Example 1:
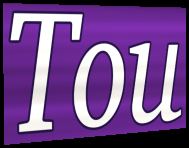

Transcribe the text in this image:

Tou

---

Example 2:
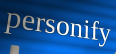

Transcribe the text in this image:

personify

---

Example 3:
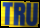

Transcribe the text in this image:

TRU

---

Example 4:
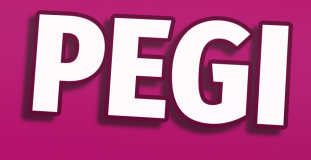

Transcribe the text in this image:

PEGI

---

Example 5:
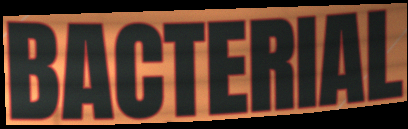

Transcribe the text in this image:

BACTERIAL